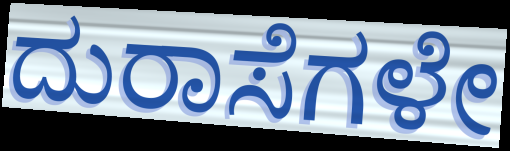
ದುರಾಸೆಗಳೇ